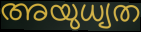
അയുധ്യത